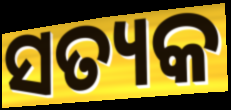
ସତ୍ୟକ